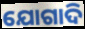
ଯୋଗାଦି